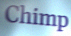
Chimp